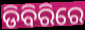
ଡିବିରିରେ